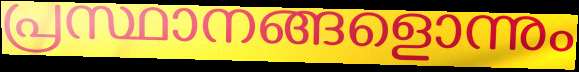
പ്രസ്ഥാനങ്ങളൊന്നും